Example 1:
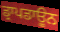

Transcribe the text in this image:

ਡ੍ਰਾਪਡਾਊਨ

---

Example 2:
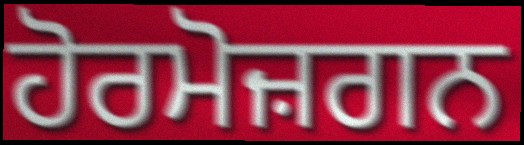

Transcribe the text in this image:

ਹੋਰਮੋਜ਼ਗਨ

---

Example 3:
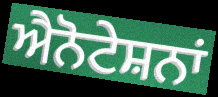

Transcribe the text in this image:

ਐਨੋਟੇਸ਼ਨਾਂ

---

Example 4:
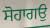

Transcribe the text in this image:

ਸੋਹਾਗਉ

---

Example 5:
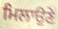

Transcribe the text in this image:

ਮਿਲਾਉਣੇ